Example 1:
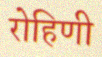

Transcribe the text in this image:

रोहिणी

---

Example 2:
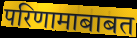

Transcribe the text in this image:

परिणामाबाबत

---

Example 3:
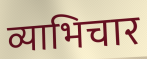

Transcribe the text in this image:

व्याभिचार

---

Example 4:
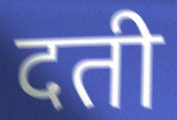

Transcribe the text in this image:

दती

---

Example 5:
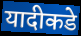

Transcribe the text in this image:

यादीकडे